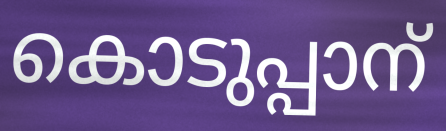
കൊടുപ്പാന്